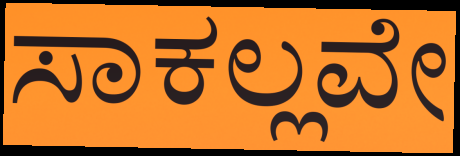
ಸಾಕಲ್ಲವೇ